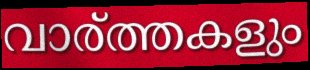
വാര്ത്തകളും